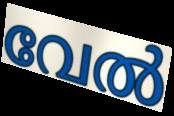
വേൽ